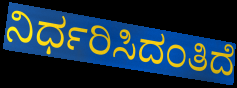
ನಿರ್ಧರಿಸಿದಂತಿದೆ